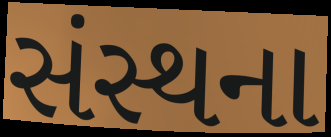
સંસ્થના